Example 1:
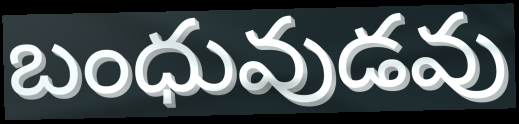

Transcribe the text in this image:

బంధువుడవు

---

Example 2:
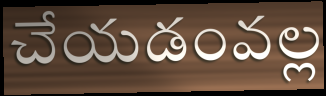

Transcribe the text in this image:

చేయడంవల్ల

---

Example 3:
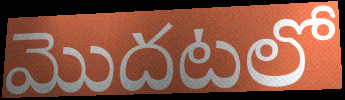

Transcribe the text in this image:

మొదటలో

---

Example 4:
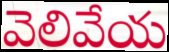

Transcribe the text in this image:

వెలివేయ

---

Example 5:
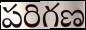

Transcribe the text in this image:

పరిగణ